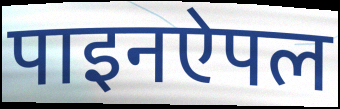
पाइनऐपल